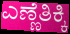
ಎಣ್ಣೆತಿಕ್ಕಿ